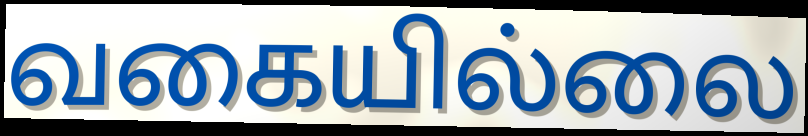
வகையில்லை